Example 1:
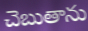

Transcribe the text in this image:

చెబుతాను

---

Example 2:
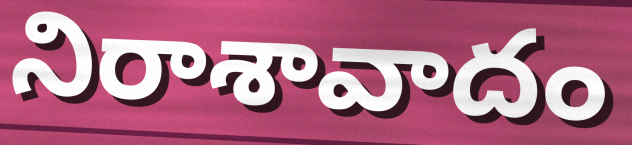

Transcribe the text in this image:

నిరాశావాదం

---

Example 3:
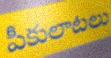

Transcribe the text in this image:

పీకులాటలు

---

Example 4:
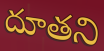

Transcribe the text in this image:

దూతని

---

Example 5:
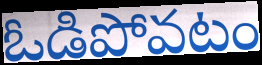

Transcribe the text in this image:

ఓడిపోవటం